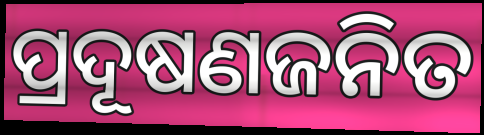
ପ୍ରଦୂଷଣଜନିତ